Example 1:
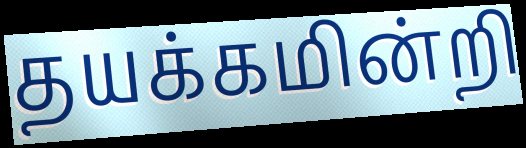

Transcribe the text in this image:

தயக்கமின்றி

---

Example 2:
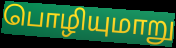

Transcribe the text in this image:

பொழியுமாறு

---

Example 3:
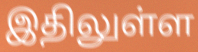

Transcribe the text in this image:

இதிலுள்ள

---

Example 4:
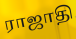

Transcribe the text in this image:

ராஜாதி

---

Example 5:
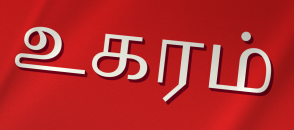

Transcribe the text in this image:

உகரம்